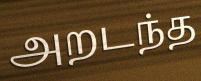
அறடந்த